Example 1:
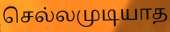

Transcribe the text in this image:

செல்லமுடியாத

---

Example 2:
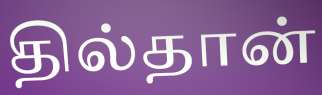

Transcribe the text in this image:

தில்தான்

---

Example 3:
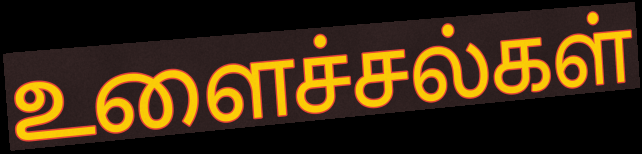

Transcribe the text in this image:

உளைச்சல்கள்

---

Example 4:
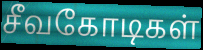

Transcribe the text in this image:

சீவகோடிகள்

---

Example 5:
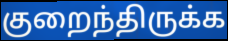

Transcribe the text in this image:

குறைந்திருக்க